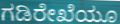
ಗಡಿರೇಖೆಯೂ